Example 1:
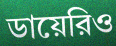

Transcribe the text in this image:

ডায়েরিও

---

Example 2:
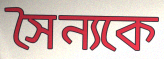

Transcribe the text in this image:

সৈন্যকে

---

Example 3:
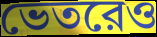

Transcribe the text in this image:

ভেতরেও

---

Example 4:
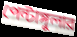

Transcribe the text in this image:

পেন্টাঙ্গুলার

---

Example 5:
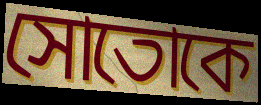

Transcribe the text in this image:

সোতোকে